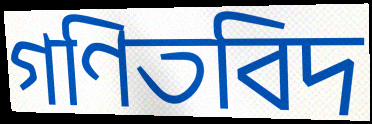
গণিতবিদ